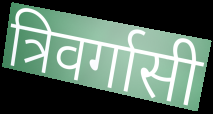
त्रिवर्गासी